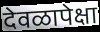
देवळापेक्षा